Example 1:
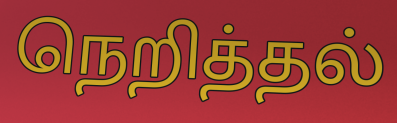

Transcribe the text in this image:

நெறித்தல்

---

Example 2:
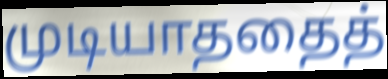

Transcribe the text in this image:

முடியாததைத்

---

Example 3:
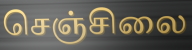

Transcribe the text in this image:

செஞ்சிலை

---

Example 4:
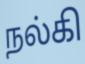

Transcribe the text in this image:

நல்கி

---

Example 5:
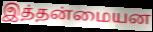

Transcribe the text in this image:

இத்தன்மையன